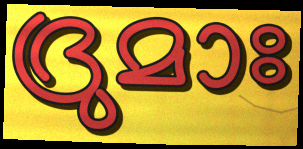
ദ്രുമാഃ